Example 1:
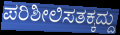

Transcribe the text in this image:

ಪರಿಶೀಲಿಸತಕ್ಕದ್ದು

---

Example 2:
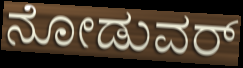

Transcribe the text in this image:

ನೋಡುವರ್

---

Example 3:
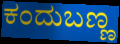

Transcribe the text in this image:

ಕಂದುಬಣ್ಣ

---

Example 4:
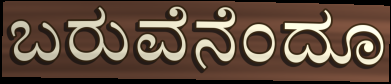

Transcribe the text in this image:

ಬರುವೆನೆಂದೂ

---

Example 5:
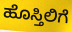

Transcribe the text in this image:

ಹೊಸ್ತಿಲಿಗೆ